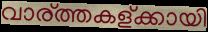
വാര്ത്തകള്ക്കായി